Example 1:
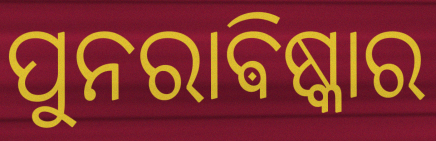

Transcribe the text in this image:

ପୁନରାଵିଷ୍କାର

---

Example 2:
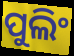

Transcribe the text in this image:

ପୁଲିଂ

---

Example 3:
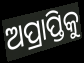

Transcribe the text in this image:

ଅପ୍ରାପ୍ତିକୁ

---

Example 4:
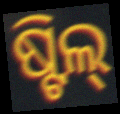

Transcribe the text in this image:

ଷ୍ଟିଲ୍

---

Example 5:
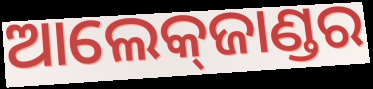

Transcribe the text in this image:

ଆଲେକ୍‌ଜାଣ୍ଡର